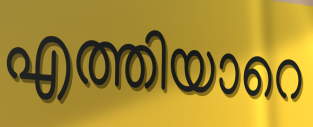
എത്തിയാറെ